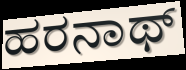
ಹರನಾಥ್